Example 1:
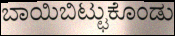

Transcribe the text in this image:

ಬಾಯಿಬಿಟ್ಟುಕೊಂಡು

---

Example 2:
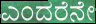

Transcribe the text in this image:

ಎಂದರೆನೇ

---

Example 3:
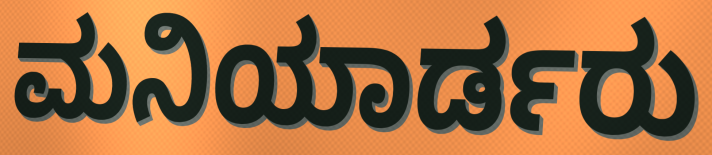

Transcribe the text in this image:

ಮನಿಯಾರ್ಡರು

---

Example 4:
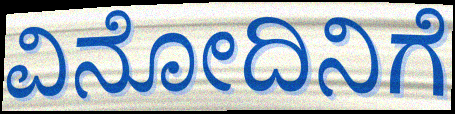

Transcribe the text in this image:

ವಿನೋದಿನಿಗೆ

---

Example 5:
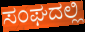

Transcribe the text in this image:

ಸಂಘದಲ್ಲಿ